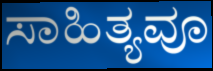
ಸಾಹಿತ್ಯವೂ